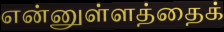
என்னுள்ளத்தைக்